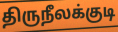
திருநீலக்குடி